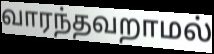
வாரந்தவறாமல்